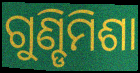
ଗୁଣ୍ଡିମିଶା